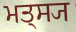
ਮਤ੍ਸ੍ਯ